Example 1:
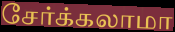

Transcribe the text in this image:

சேர்க்கலாமா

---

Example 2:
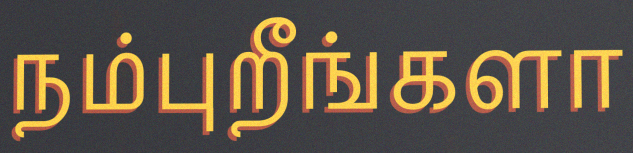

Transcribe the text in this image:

நம்புறீங்களா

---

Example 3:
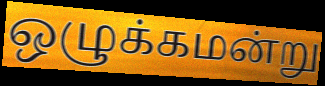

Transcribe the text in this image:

ஒழுக்கமன்று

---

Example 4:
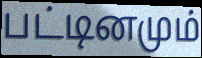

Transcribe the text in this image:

பட்டினமும்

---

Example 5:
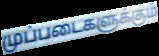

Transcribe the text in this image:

முப்படைகளுக்கும்